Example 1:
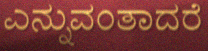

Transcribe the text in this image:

ಎನ್ನುವಂತಾದರೆ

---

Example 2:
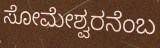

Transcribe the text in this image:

ಸೋಮೇಶ್ವರನೆಂಬ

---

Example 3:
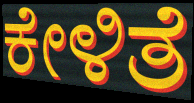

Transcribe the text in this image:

ಕೇಳಿತೆ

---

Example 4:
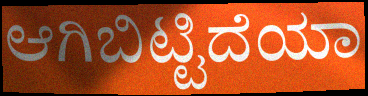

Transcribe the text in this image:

ಆಗಿಬಿಟ್ಟಿದೆಯಾ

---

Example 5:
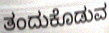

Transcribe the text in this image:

ತಂದುಕೊಡುವ